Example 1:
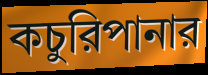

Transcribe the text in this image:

কচুরিপানার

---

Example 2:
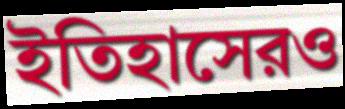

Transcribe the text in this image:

ইতিহাসেরও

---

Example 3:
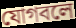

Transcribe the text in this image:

যোগবলে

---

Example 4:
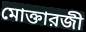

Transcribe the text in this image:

মোক্তারজী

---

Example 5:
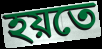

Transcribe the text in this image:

হয়তে